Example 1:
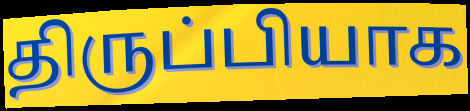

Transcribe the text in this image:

திருப்பியாக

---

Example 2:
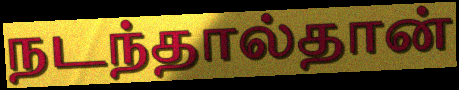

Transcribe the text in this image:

நடந்தால்தான்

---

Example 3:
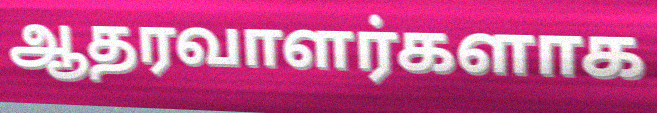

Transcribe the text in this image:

ஆதரவாளர்களாக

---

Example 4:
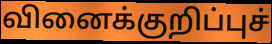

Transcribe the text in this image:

வினைக்குறிப்புச்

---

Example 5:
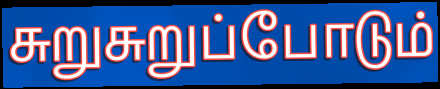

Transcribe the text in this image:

சுறுசுறுப்போடும்